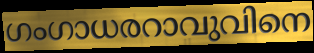
ഗംഗാധരറാവുവിനെ